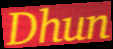
Dhun